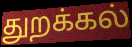
துறக்கல்